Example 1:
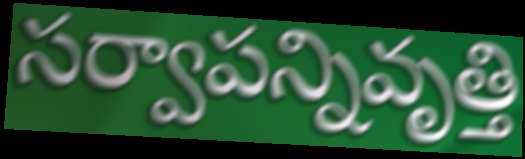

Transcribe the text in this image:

సర్వాపన్నివృత్తి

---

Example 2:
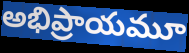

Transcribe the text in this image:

అభిప్రాయమూ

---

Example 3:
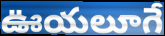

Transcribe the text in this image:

ఊయలూగే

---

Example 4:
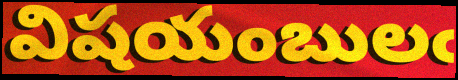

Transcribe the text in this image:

విషయంబులఁ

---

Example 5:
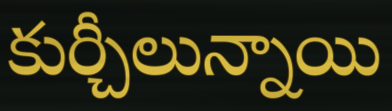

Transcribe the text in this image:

కుర్చీలున్నాయి